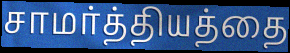
சாமர்த்தியத்தை